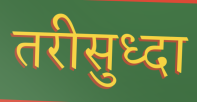
तरीसुध्दा